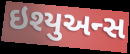
ઇશ્યુઅન્સ